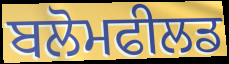
ਬਲੋਮਫੀਲਡ